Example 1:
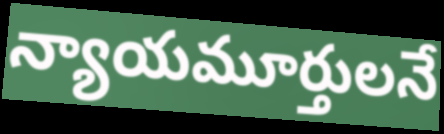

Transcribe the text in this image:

న్యాయమూర్తులనే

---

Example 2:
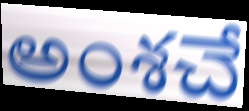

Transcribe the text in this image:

అంశచే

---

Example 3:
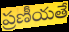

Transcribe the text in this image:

ప్రణీయతే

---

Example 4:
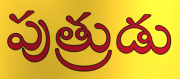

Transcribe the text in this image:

పుత్రుడు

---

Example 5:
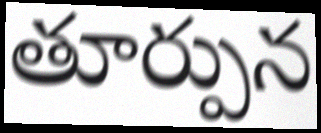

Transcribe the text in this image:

తూర్పున